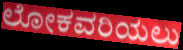
ಲೋಕವರಿಯಲು